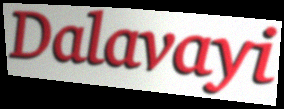
Dalavayi